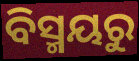
ବିସ୍ମୟରୁ